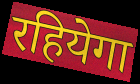
रहियेगा